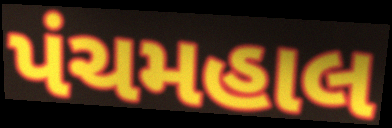
પંચમહાલ